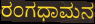
ರಂಗಧಾಮನ